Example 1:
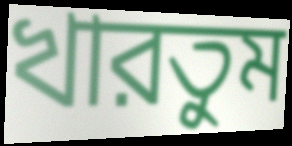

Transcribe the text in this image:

খারতুম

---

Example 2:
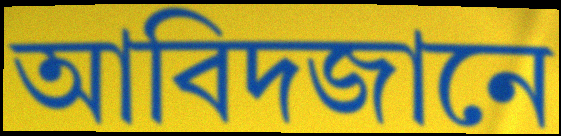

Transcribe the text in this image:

আবিদজানে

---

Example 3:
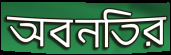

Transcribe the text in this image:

অবনতির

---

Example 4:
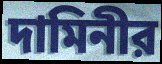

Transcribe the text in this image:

দামিনীর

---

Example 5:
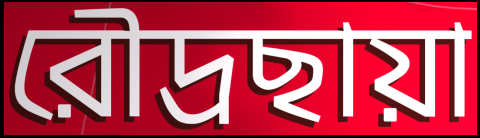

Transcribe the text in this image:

রৌদ্রছায়া